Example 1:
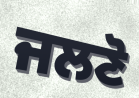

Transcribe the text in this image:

ਜਲਣੋ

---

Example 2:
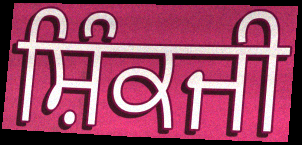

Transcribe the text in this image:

ਸ਼ਿੰਕਜੀ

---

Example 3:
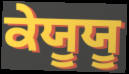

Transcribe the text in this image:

ਕੇਯੂਯੂ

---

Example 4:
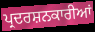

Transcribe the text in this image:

ਪ੍ਰਦਰਸ਼ਨਕਾਰੀਆਂ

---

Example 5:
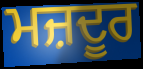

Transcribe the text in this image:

ਮਜ਼ਦੂਰ